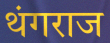
थंगराज